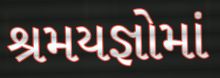
શ્રમયજ્ઞોમાં